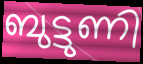
ബുട്ടുണി